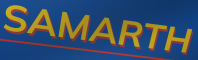
SAMARTH